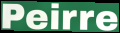
Peirre